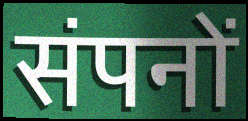
संपनों